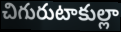
చిగురుటాకుల్లా